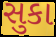
સુકા